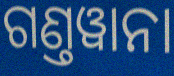
ଗଣ୍ତୱାନା